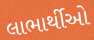
લાભાર્થીઓ